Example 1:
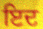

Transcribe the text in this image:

ਇਦ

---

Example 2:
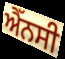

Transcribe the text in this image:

ਐੱਨਸੀ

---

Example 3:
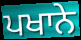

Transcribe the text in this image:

ਪਖਾਨੇ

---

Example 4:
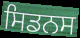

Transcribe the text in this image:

ਸਿਡਨਸ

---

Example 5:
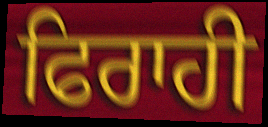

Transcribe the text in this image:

ਫਿਰਾਹੀ